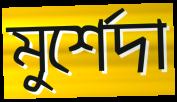
মুর্শেদা